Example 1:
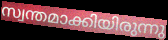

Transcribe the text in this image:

സ്വന്തമാക്കിയിരുന്നു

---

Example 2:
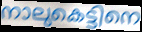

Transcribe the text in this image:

നാലുകെട്ടിനെ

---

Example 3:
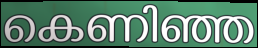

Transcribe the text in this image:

കെണിഞ്ഞ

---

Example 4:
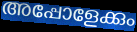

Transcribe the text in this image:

അപ്പോളേക്കും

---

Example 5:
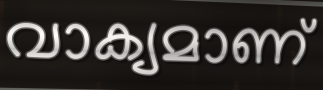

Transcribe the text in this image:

വാക്യമാണ്